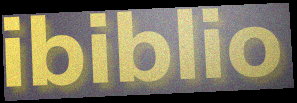
ibiblio